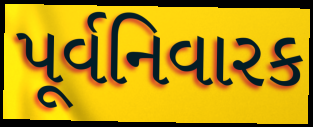
પૂર્વનિવારક